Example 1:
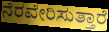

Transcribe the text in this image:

ನೆರವೇರಿಸುತ್ತಾರೆ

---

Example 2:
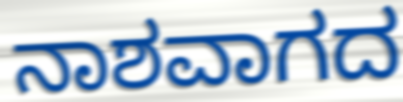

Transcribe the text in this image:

ನಾಶವಾಗದ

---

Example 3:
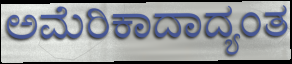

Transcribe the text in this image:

ಅಮೆರಿಕಾದಾದ್ಯಂತ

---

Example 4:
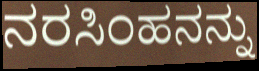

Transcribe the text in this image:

ನರಸಿಂಹನನ್ನು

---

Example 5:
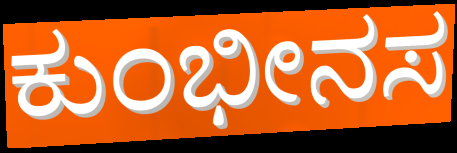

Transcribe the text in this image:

ಕುಂಭೀನಸ